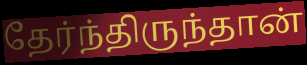
தேர்ந்திருந்தான்